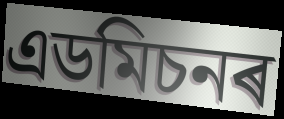
এডমিচনৰ